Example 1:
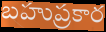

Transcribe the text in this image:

బహుప్రకార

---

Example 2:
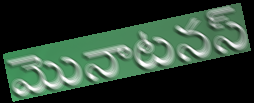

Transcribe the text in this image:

మొనాటనస్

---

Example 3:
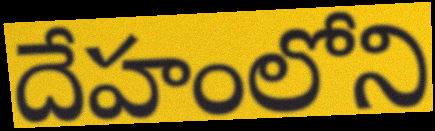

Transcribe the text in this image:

దేహంలోని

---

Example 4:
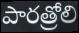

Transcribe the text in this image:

పారత్రోలి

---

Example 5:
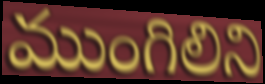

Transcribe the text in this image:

ముంగిలిని